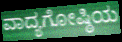
ವಾದ್ಯಗೋಷ್ಠಿಯ